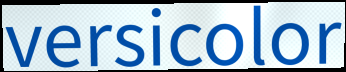
versicolor